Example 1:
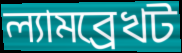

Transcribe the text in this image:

ল্যামব্রেখট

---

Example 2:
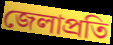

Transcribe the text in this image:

জেলাপ্রতি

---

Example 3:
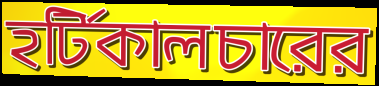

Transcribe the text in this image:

হর্টিকালচারের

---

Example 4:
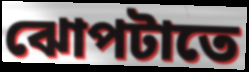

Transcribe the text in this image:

ঝোপটাতে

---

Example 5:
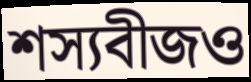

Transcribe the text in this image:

শস্যবীজও